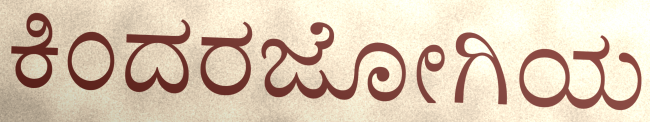
ಕಿಂದರಜೋಗಿಯ